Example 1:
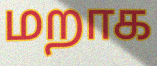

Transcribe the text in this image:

மறாக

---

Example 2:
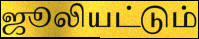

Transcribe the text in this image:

ஜூலியட்டும்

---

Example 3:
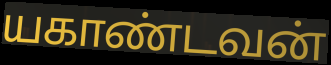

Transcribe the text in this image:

யகாண்டவன்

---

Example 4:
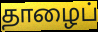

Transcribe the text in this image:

தாழைப்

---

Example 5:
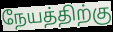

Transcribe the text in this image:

நேயத்திற்கு